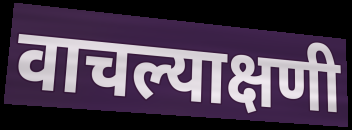
वाचल्याक्षणी